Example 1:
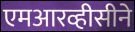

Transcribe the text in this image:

एमआरव्हीसीने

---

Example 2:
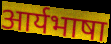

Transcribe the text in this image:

आर्यभाषा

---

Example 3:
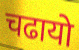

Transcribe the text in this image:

चढायो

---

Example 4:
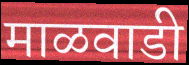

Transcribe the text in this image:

माळवाडी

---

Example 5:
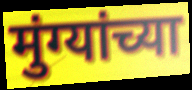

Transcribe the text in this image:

मुंग्यांच्या